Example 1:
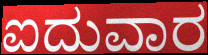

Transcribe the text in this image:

ಐದುವಾರ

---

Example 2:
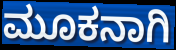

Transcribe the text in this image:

ಮೂಕನಾಗಿ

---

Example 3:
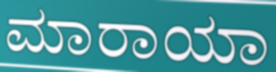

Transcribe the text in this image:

ಮಾರಾಯಾ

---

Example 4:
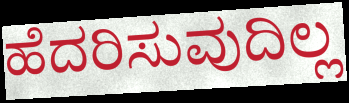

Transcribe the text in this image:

ಹೆದರಿಸುವುದಿಲ್ಲ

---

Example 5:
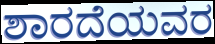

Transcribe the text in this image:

ಶಾರದೆಯವರ